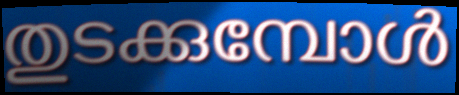
തുടക്കുമ്പോൾ